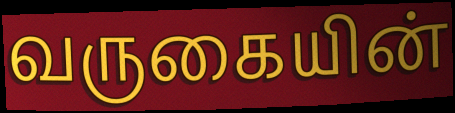
வருகையின்